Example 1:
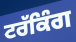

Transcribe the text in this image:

ਟਰੱਕਿੰਗ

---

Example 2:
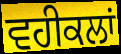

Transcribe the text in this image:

ਵਹੀਕਲਾਂ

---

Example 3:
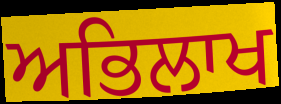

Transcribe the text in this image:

ਅਭਿਲਾਖ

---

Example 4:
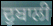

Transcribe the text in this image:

ਦੁਬਾਲੀ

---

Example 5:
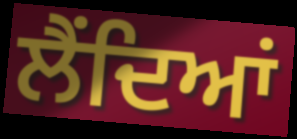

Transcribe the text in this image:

ਲੈਂਦਿਆਂ